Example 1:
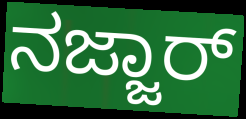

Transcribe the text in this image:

ನಜ್ಜಾರ್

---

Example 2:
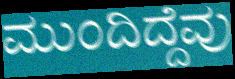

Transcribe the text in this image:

ಮುಂದಿದ್ದೆವು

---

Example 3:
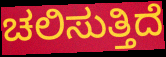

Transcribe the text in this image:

ಚಲಿಸುತ್ತಿದೆ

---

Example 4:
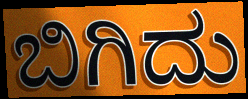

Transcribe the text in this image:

ಬಿಗಿದು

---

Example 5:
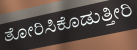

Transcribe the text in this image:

ತೋರಿಸಿಕೊಡುತ್ತೀರಿ